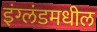
इंग्लंडमधील